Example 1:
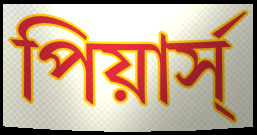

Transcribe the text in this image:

পিয়ার্স্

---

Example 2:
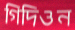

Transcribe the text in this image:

গিদিওন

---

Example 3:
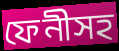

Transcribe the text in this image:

ফেনীসহ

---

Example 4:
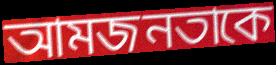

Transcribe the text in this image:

আমজনতাকে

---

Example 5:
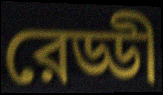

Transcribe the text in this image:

রেড্ডী